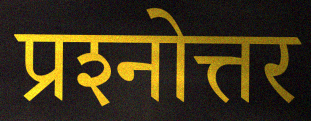
प्रश्‍नोत्तर